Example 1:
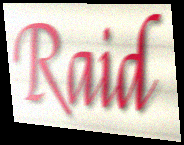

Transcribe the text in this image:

Raid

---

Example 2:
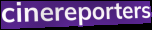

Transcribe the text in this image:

cinereporters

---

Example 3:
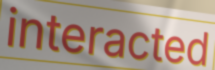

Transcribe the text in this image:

interacted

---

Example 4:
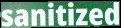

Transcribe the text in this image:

sanitized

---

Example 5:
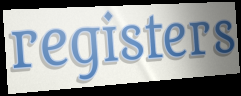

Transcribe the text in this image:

registers